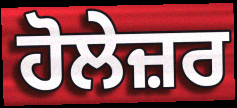
ਹੋਲੇਜ਼ਰ